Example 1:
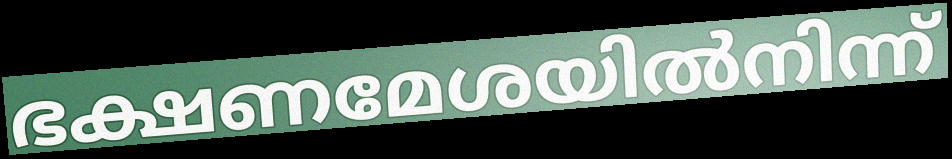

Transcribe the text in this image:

ഭക്ഷണമേശയിൽനിന്ന്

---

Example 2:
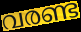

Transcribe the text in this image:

വരണ്ട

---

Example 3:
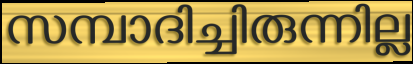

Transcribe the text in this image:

സമ്പാദിച്ചിരുന്നില്ല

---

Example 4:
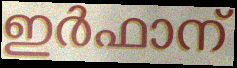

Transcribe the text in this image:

ഇർഫാന്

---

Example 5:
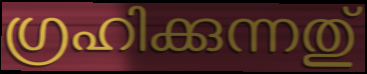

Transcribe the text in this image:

ഗ്രഹിക്കുന്നതു്